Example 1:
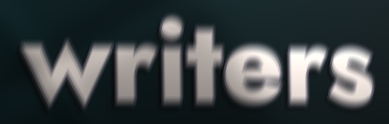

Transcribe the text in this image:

writers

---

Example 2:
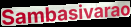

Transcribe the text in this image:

Sambasivarao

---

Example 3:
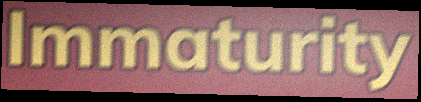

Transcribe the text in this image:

Immaturity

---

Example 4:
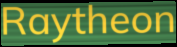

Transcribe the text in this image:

Raytheon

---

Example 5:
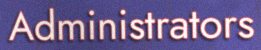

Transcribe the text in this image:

Administrators